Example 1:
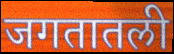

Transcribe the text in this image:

जगतातली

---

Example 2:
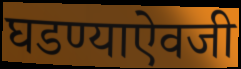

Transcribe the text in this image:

घडण्याऐवजी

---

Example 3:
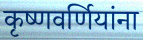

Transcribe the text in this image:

कृष्णवर्णियांना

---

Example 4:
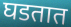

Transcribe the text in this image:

घडतात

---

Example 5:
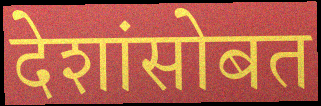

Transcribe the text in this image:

देशांसोबत